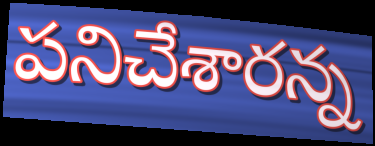
పనిచేశారన్న